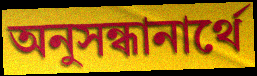
অনুসন্ধানার্থে